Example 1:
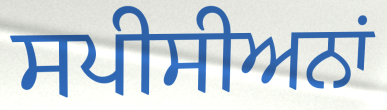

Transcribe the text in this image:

ਸਪੀਸੀਅਨਾਂ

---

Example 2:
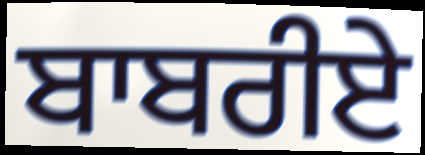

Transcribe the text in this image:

ਬਾਬਰੀਏ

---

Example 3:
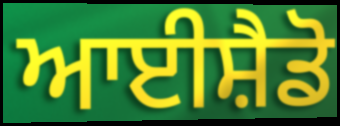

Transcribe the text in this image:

ਆਈਸ਼ੈਡੋ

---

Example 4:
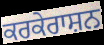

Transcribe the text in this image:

ਕਰਕੇਰਾਸ਼ਨ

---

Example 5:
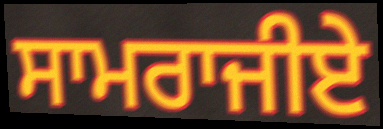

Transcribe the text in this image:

ਸਾਮਰਾਜੀਏ